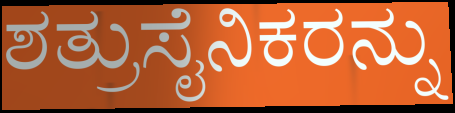
ಶತ್ರುಸೈನಿಕರನ್ನು